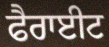
ਫੈਰਾਈਟ